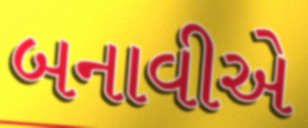
બનાવીએ